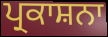
ਪ੍ਰਕਾਸ਼ਨਾ